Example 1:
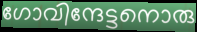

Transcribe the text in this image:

ഗോവിന്ദേട്ടനൊരു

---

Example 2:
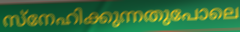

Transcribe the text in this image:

സ്നേഹിക്കുന്നതുപോലെ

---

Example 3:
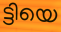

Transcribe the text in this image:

ട്ടിയെ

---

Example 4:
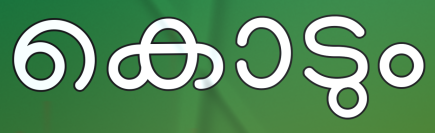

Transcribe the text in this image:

കൊടും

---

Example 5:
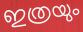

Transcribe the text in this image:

ഇത്രയും